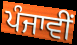
ਪੰਜਾਵੀਂ